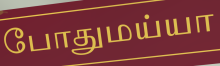
போதுமய்யா